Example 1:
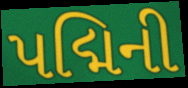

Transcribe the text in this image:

પદ્મિની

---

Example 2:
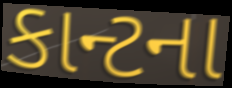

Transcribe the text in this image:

કાન્ટના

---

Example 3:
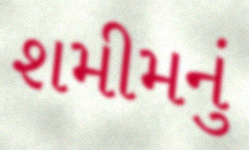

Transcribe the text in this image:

શમીમનું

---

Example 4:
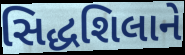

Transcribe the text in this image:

સિદ્ધશિલાને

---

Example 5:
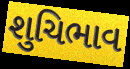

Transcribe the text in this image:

શુચિભાવ